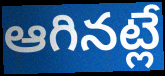
ఆగినట్లే